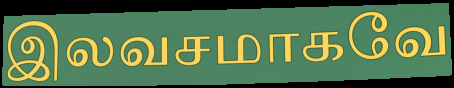
இலவசமாகவே